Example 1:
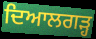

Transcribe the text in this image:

ਦਿਆਲਗੜ੍ਹ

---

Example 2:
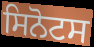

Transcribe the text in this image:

ਸਿਨੋਟਸ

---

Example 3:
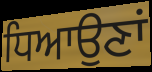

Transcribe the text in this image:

ਧਿਆਉਣਾਂ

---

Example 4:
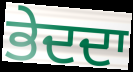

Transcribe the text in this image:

ਭੇਦਦਾ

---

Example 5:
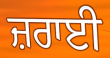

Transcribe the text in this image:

ਜ਼ਰਾਈ